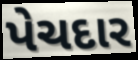
પેચદાર